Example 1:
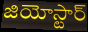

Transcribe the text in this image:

జియోస్టార్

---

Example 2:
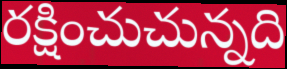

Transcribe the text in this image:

రక్షించుచున్నది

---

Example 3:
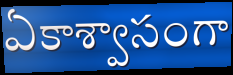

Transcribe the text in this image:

ఏకాశ్వాసంగా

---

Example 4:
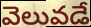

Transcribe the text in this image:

వెలువడే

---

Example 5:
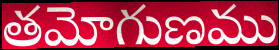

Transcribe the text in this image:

తమోగుణము